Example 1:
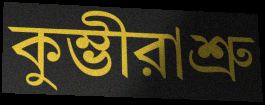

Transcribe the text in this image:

কুম্ভীরাশ্রু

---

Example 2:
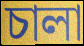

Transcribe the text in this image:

চালা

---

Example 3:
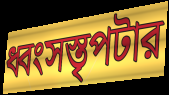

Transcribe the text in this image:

ধ্বংসস্তৃপটার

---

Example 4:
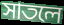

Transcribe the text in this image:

সাতলে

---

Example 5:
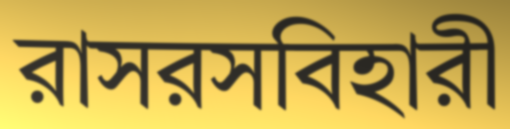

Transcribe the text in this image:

রাসরসবিহারী